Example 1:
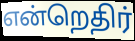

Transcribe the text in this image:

என்றெதிர்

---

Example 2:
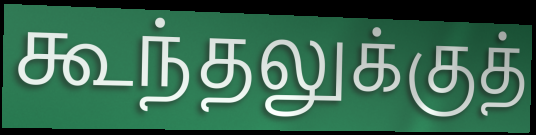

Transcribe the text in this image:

கூந்தலுக்குத்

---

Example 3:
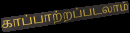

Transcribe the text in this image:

காப்பாற்றப்படலாம்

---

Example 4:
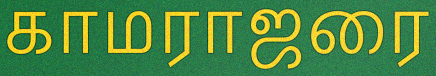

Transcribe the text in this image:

காமராஜரை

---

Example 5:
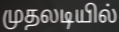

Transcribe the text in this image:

முதலடியில்